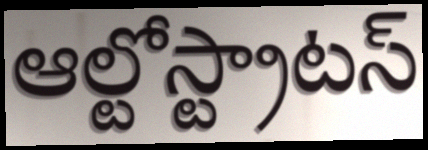
ఆల్టోస్ట్రాటస్